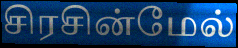
சிரசின்மேல்